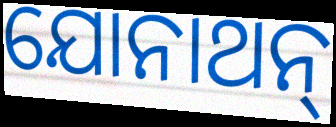
ଯୋନାଥନ୍